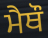
ਮੈਥੌ